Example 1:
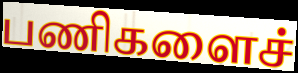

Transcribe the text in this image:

பணிகளைச்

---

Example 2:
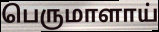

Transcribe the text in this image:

பெருமாளாய்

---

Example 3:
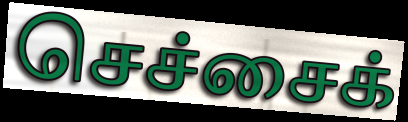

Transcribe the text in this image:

செச்சைக்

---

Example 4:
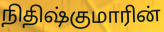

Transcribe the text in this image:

நிதிஷ்குமாரின்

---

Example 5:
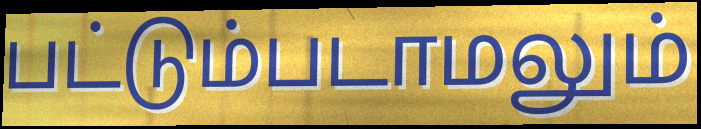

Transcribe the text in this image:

பட்டும்படாமலும்